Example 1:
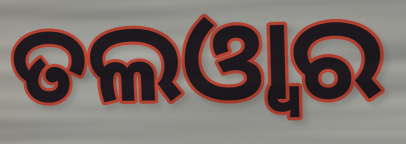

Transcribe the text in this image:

ତଲଓ୍ୱାର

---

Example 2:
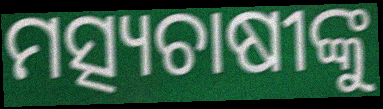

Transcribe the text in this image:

ମତ୍ସ୍ୟଚାଷୀଙ୍କୁ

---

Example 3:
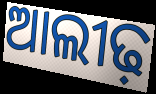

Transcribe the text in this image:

ଆଲୀଢ଼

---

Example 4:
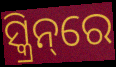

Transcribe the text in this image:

ସ୍କ୍ରିନ୍‌ରେ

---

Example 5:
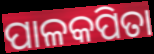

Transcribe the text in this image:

ପାଳକପିତା